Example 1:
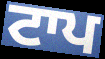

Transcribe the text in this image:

ਟਾਪ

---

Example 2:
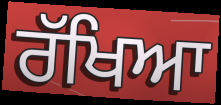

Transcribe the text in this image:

ਰੱਖਿਆ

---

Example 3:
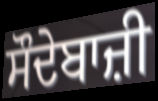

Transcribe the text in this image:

ਸੌਦੇਬਾਜ਼ੀ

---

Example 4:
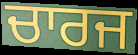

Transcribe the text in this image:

ਚਾਰਜ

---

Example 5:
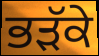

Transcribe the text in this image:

ਭੜੱਕੇ